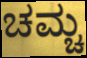
ಚಮ್ಚ